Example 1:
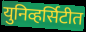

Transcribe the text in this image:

युनिव्हर्सिटीत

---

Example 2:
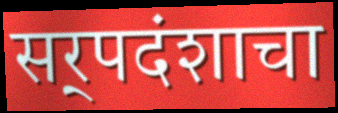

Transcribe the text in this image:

सर्पदंशाचा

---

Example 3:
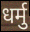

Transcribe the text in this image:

धर्मु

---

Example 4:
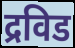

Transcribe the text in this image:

द्रविड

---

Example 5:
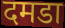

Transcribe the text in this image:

दमडा